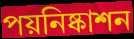
পয়নিষ্কাশন